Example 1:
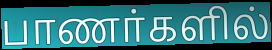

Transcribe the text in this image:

பாணர்களில்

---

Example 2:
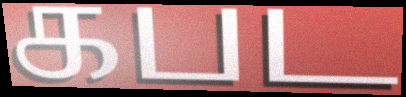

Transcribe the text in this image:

கபட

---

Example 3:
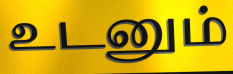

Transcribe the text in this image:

உடனும்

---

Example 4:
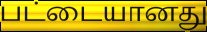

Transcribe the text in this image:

பட்டையானது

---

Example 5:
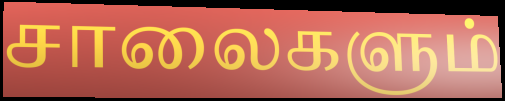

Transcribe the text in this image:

சாலைகளும்